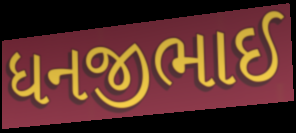
ધનજીભાઈ